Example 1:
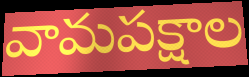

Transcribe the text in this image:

వామపక్షాల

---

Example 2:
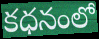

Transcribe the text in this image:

కధనంలో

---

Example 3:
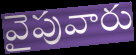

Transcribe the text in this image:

వైపువారు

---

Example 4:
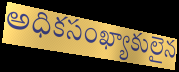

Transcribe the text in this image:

అధికసంఖ్యాకులైన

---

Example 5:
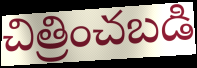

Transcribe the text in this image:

చిత్రించబడి